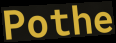
Pothe